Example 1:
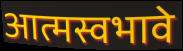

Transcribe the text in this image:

आत्मस्वभावे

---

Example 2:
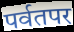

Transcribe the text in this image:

पर्वतपर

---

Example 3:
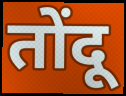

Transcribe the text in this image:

तोंदू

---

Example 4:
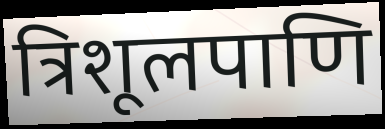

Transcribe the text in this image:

त्रिशूलपाणि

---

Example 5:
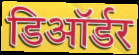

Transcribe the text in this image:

डिऑर्डर